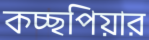
কচ্ছপিয়ার